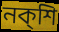
নক্‌শি